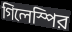
গিলেস্পির